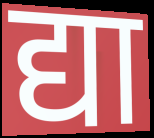
द्या